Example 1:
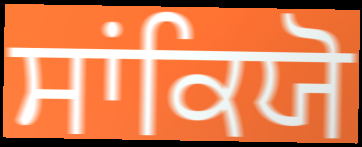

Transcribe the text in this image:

ਸਾਂਕਿਯੋ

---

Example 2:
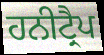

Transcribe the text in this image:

ਹਨੀਟ੍ਰੈਪ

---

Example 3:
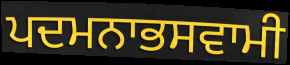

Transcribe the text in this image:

ਪਦਮਨਾਭਸਵਾਮੀ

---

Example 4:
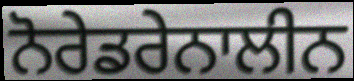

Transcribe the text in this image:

ਨੋਰੇਡਰੇਨਾਲੀਨ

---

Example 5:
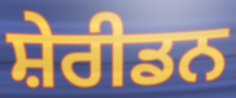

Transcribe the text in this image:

ਸ਼ੇਰੀਡਨ